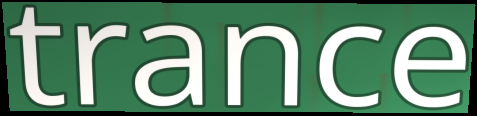
trance